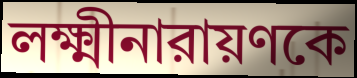
লক্ষ্মীনারায়ণকে